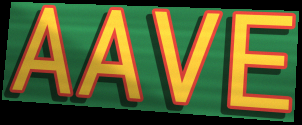
AAVE